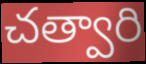
చత్వారి